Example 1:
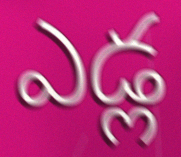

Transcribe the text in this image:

ఎడ్ల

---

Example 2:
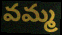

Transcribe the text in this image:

వమ్మ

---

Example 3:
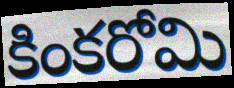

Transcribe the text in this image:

కింకరోమి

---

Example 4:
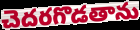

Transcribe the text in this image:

చెదరగొడతాను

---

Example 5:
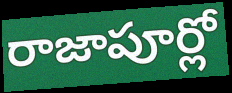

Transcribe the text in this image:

రాజాపూర్లో